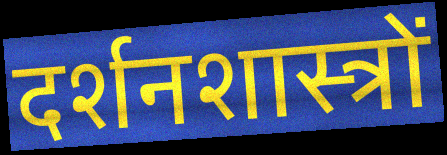
दर्शनशास्त्रों